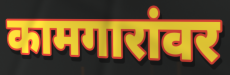
कामगारांवर